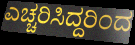
ಎಚ್ಚರಿಸಿದ್ದರಿಂದ